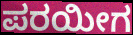
ಪರಯೀಗ